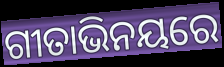
ଗୀତାଭିନୟରେ